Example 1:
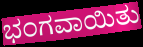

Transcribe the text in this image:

ಭಂಗವಾಯಿತು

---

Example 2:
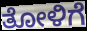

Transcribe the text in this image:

ತೋಳಿಗೆ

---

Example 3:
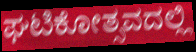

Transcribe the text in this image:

ಘಟಿಕೋತ್ಸವದಲ್ಲಿ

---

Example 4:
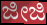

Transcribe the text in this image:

ಜೀಜಿ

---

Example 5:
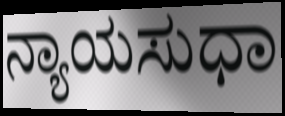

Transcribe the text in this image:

ನ್ಯಾಯಸುಧಾ